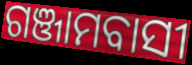
ଗଞ୍ଜାମବାସୀ